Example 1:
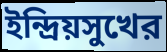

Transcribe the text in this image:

ইন্দ্রিয়সুখের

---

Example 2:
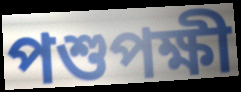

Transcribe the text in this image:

পশুপক্ষী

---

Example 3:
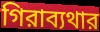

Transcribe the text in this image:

গিরাব্যথার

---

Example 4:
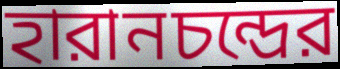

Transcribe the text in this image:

হারানচন্দ্রের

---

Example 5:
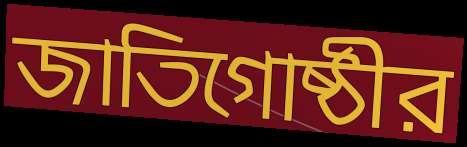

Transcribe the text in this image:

জাতিগোষ্ঠীর